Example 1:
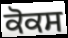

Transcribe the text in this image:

ਕੋਕਸ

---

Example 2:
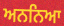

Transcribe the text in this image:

ਅਨਨਿਆ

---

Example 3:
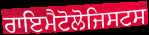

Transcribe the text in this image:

ਰਾਇਮੈਟੋਲੋਜਿਸਟਸ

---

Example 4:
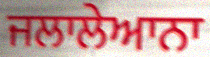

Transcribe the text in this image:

ਜਲਾਲੇਆਨਾ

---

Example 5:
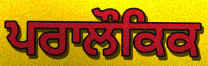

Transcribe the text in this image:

ਪਰਾਲੌਕਿਕ